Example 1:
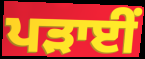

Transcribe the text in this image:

ਪੜਾਈਂ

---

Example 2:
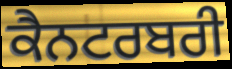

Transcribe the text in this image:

ਕੈਨਟਰਬਰੀ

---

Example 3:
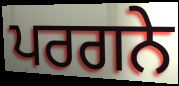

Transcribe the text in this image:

ਪਰਗਨੇ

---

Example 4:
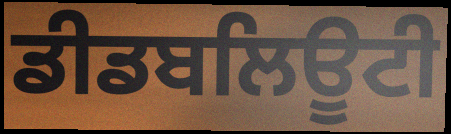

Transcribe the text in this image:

ਡੀਡਬਲਿਊਟੀ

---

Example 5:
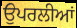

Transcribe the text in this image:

ਉਪਰਲੀਆਂ